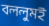
বললুমই